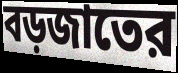
বড়জাতের